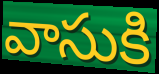
వాసుకి